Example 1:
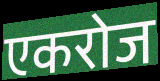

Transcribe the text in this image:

एकरोज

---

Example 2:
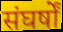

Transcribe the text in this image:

संघर्षों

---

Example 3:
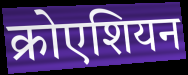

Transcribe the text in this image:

क्रोएशियन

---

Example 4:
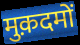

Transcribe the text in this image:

मुक़दमों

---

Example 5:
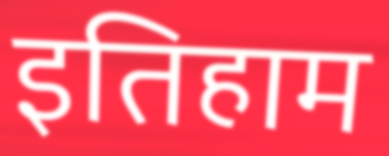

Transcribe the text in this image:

इतिहाम